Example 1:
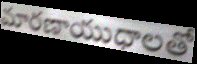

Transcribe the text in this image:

మారణాయుధాలతో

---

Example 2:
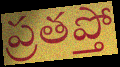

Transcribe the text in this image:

ప్రతప్తో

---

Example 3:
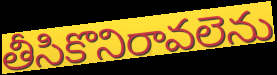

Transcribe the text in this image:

తీసికొనిరావలెను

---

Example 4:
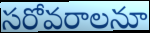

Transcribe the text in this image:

సరోవరాలనూ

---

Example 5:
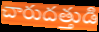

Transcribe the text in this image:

చారుదత్తుడి